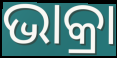
ଭାକ୍ରା